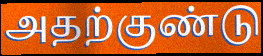
அதற்குண்டு